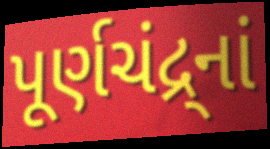
પૂર્ણચંદ્ર્નાં